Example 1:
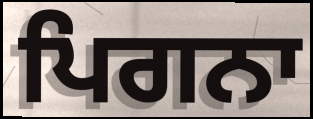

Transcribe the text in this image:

ਪਿਗਨਾ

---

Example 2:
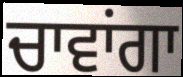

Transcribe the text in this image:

ਚਾਵਾਂਗਾ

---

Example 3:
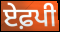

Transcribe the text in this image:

ਏਫ਼ਪੀ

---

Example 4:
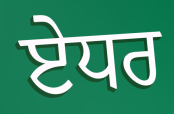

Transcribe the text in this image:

ਏਧਰ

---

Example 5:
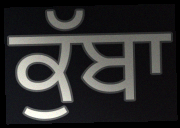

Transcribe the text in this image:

ਕੁੱਬਾ